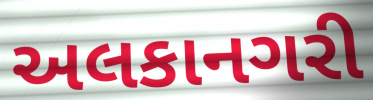
અલકાનગરી